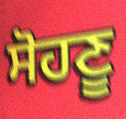
ਸੋਹਣੂ